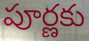
పూర్ణకు